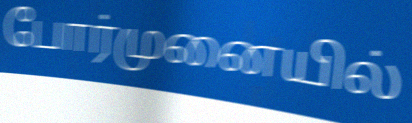
போர்முனையில்